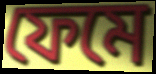
ফেমে